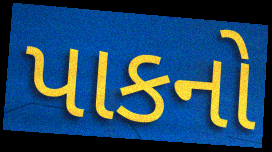
પાકનો